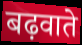
बढ़वाते